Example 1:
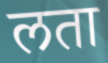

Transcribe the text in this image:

लता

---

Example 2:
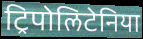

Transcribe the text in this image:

ट्रिपोलिटेनिया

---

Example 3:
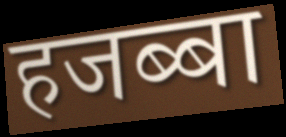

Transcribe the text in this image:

हजब्बा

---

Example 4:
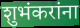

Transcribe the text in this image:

शुभंकरांना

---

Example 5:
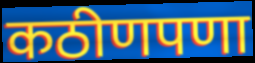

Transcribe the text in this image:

कठीणपणा